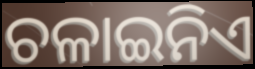
ଚଳାଇନିଏ